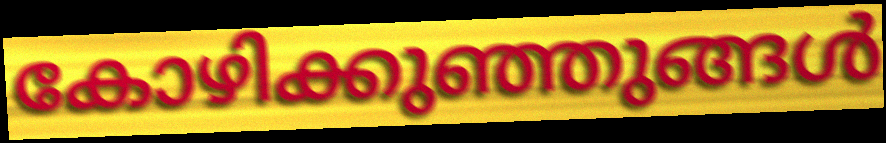
കോഴിക്കുഞ്ഞുങ്ങൾ